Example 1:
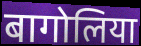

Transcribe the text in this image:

बागोलिया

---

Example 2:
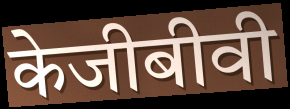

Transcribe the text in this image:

केजीबीवी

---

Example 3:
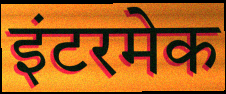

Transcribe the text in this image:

इंटरमेक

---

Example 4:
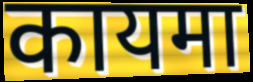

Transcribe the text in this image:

कायमा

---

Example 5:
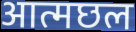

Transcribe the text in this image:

आत्मछल